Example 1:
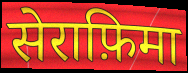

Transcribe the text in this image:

सेराफ़िमा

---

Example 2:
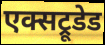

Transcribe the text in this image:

एक्सट्रूडेड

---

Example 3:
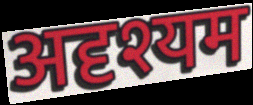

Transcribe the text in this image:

अदृश्यम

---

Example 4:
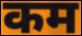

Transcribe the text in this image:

कम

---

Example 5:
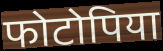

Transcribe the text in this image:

फोटोपिया